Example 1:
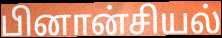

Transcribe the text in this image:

பினான்சியல்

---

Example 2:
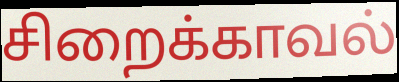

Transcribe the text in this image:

சிறைக்காவல்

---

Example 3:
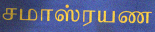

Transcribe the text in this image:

சமாஸ்ரயண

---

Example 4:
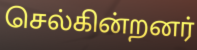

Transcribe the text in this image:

செல்கின்றனர்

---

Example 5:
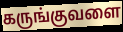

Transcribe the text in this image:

கருங்குவளை